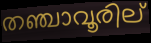
തഞ്ചാവൂരില്